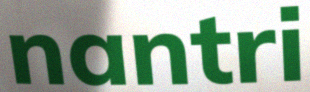
nantri